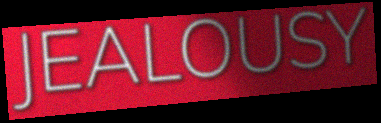
JEALOUSY